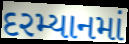
દરમ્યાનમાં